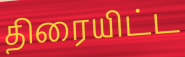
திரையிட்ட